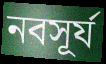
নবসূর্য